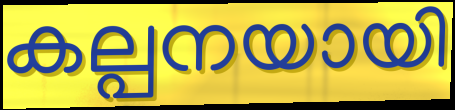
കല്പനയായി